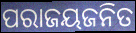
ପରାଜୟଜନିତ